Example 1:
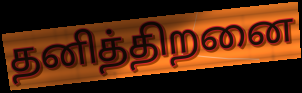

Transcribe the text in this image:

தனித்திறனை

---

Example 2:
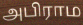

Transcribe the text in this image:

அபிராம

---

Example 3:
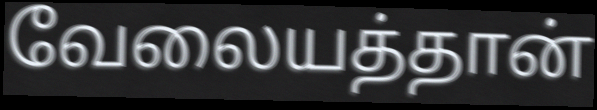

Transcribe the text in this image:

வேலையத்தான்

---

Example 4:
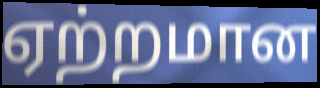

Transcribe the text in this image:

ஏற்றமான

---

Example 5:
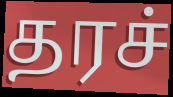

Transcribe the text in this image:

தரச்